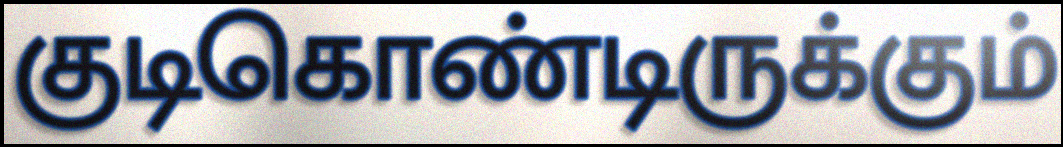
குடிகொண்டிருக்கும்